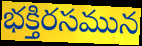
భక్తిరసమున